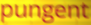
pungent